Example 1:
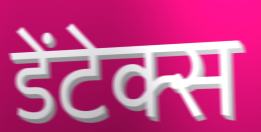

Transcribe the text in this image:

डेंटेक्स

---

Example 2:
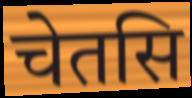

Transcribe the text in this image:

चेतसि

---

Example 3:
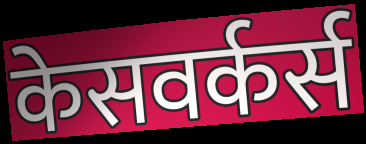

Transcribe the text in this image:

केसवर्कर्स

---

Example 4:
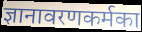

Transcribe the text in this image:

ज्ञानावरणकर्मका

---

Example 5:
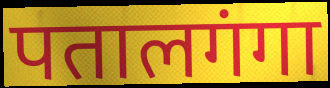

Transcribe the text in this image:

पतालगंगा